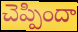
చెప్పిందా